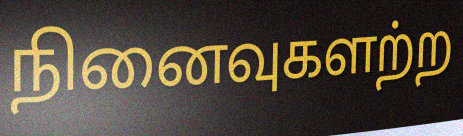
நினைவுகளற்ற